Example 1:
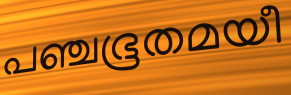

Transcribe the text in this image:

പഞ്ചഭൂതമയീ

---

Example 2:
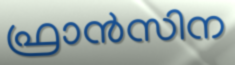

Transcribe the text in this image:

ഫ്രാൻസിന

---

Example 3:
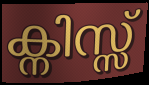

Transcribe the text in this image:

ക്നിസ്സ്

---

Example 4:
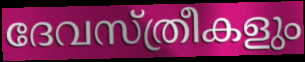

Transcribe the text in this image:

ദേവസ്ത്രീകളും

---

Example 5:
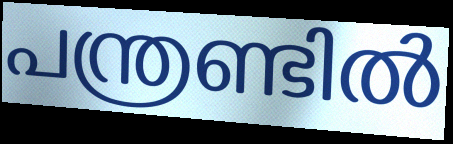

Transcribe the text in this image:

പന്ത്രണ്ടിൽ